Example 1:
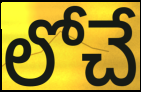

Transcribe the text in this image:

లోచే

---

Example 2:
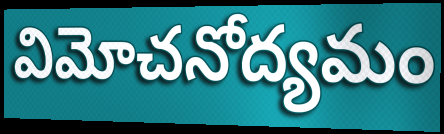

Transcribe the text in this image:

విమోచనోద్యమం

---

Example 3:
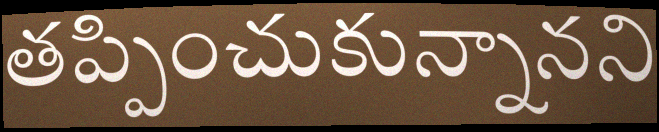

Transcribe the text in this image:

తప్పించుకున్నానని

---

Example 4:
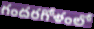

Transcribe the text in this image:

గందరగోళంలో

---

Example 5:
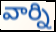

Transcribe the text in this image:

వార్ని